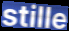
stille